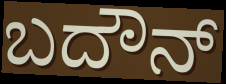
ಬದೌನ್